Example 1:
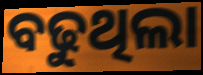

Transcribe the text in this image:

ବଢୁଥିଲା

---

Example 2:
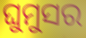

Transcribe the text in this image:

ଘୁମୁସର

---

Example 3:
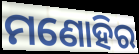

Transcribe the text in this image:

ମଣୋହିର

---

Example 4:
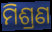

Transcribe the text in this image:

ମିଶ୍ରଣ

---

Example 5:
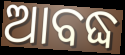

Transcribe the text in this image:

ଆବଦ୍ଧ